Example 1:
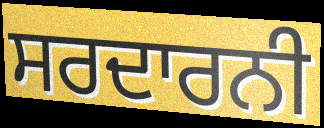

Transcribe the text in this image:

ਸਰਦਾਰਨੀ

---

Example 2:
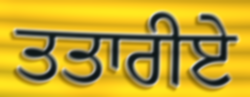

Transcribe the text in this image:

ਤਤਾਰੀਏ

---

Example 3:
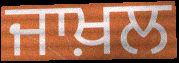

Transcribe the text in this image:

ਜਾਖ਼ਲ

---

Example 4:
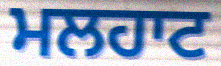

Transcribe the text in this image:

ਮਲਹਾਟ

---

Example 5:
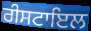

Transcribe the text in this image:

ਰੀਸਟਾਇਲ